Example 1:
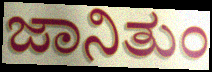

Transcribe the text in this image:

ಜಾನಿತುಂ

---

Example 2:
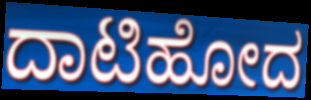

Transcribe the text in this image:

ದಾಟಿಹೋದ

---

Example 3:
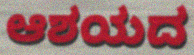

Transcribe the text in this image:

ಆಶಯದ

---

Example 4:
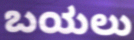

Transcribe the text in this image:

ಬಯಲು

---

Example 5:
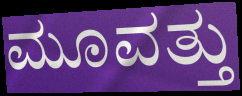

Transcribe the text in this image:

ಮೂವತ್ತು